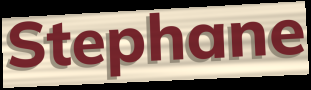
Stephane